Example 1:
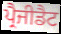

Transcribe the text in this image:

ਪ੍ਰੈਜੀਡੈਟ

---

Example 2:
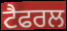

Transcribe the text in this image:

ਟੈਫਰਲ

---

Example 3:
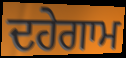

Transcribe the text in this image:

ਦਹੇਗਾਮ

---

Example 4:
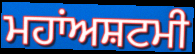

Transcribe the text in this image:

ਮਹਾਂਅਸ਼ਟਮੀ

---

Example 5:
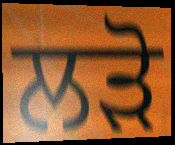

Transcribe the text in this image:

ਲੜੋ